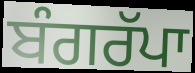
ਬੰਗਰੱਪਾ